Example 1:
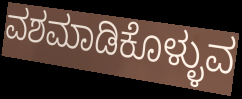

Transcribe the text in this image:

ವಶಮಾಡಿಕೊಳ್ಳುವ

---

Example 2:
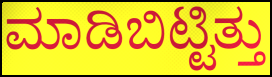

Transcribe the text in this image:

ಮಾಡಿಬಿಟ್ಟಿತ್ತು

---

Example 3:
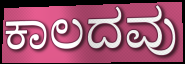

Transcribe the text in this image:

ಕಾಲದವು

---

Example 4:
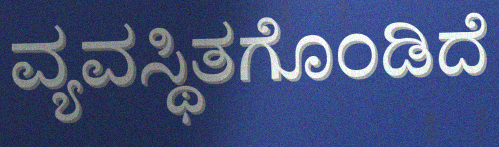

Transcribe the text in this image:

ವ್ಯವಸ್ಥಿತಗೊಂಡಿದೆ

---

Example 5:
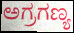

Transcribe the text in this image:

ಅಗ್ರಗಣ್ಯ